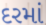
દરમાં